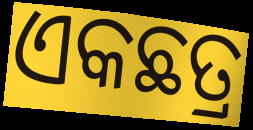
ଏକଛତ୍ର